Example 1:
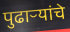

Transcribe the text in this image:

पुढाऱ्यांचे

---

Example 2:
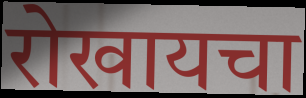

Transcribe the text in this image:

रोखायचा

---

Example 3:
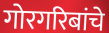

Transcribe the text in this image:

गोरगरिबांचे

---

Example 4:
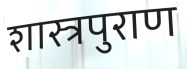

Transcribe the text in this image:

शास्त्रपुराण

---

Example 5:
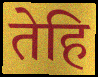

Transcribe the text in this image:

तेहि